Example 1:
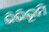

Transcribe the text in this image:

ଭିଭିଭୂମି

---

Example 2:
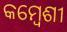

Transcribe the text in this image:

କମ୍ବେଶୀ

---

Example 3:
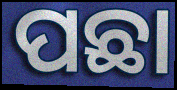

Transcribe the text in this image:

ପଛା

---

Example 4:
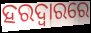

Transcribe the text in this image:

ହରଦ୍ୱାରରେ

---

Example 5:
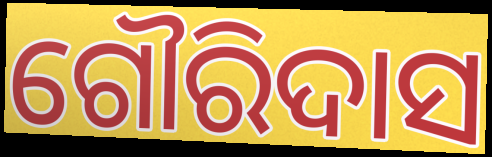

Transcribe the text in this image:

ଗୌରିଦାସ